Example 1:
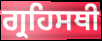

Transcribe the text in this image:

ਗ੍ਰਹਿਸਥੀ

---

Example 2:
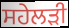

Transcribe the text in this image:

ਸਹੇਲੜੀ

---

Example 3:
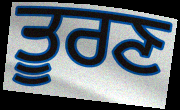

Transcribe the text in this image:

ਤੂਰਣ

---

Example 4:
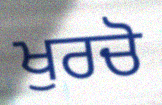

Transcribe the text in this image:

ਖੁਰਚੋ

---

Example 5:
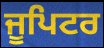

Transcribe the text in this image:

ਜੂਪਿਟਰ